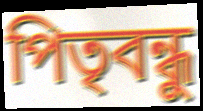
পিতৃবন্ধু